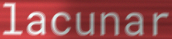
lacunar